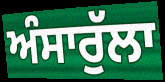
ਅੰਸਾਰੁੱਲਾ